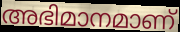
അഭിമാനമാണ്